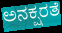
ಅನಕ್ಷರತೆ